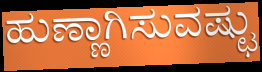
ಹುಣ್ಣಾಗಿಸುವಷ್ಟು